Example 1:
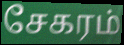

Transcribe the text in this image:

சேகரம்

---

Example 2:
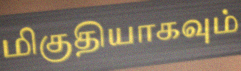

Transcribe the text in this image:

மிகுதியாகவும்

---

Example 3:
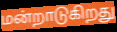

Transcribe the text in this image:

மன்றாடுகிறது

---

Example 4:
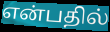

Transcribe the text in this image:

என்பதில்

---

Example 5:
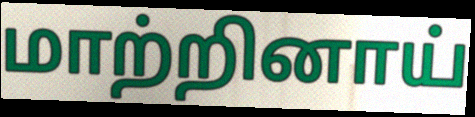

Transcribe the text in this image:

மாற்றினாய்